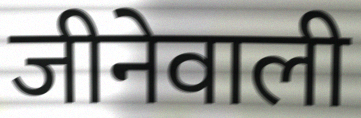
जीनेवाली